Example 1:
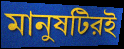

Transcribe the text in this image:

মানুষটিরই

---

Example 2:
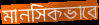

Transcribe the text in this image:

মানসিকভাবে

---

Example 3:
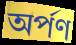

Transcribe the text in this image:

অর্পণ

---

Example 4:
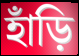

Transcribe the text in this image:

হাঁড়ি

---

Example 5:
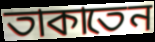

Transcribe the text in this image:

তাকাতেন